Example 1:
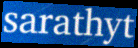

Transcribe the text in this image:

sarathyt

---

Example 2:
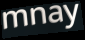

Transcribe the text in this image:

mnay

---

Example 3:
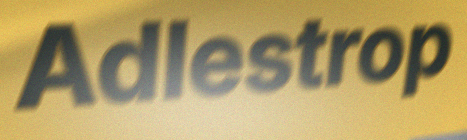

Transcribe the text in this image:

Adlestrop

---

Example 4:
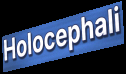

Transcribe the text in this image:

Holocephali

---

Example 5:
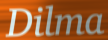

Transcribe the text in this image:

Dilma